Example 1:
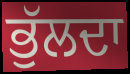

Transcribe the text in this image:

ਭੁੱਲਦਾ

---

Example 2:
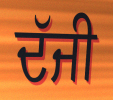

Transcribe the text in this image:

ਦੱਜੀ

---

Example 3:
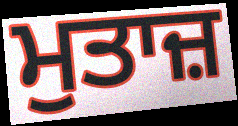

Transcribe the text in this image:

ਮੁਤਾਜ਼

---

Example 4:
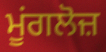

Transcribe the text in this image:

ਮੂਂਗਲੋਜ਼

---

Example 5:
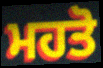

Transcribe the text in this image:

ਮਹਤੋ